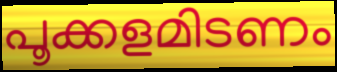
പൂക്കളമിടണം